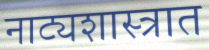
नाट्यशास्त्रात